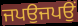
ਜਪਉਜਪਉਂ